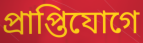
প্রাপ্তিযোগে